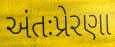
અંતઃપ્રેરણા